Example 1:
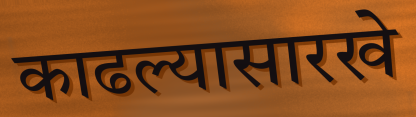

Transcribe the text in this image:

काढल्यासारखे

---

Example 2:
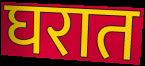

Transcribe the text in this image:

घरात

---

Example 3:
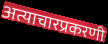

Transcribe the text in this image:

अत्याचारप्रकरणी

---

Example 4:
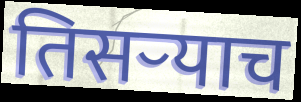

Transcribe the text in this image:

तिसऱ्याच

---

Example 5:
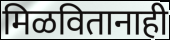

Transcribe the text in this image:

मिळवितानाही